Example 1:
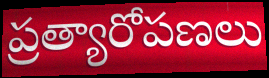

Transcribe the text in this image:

ప్రత్యారోపణలు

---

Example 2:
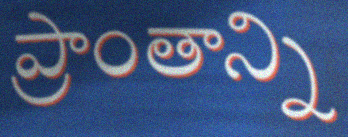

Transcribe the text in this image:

ప్రాంతాన్ని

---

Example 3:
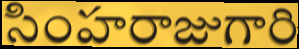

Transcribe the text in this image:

సింహరాజుగారి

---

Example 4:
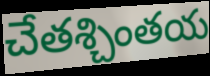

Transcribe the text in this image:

చేతశ్చింతయ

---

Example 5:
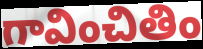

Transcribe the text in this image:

గావించితిం